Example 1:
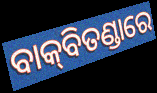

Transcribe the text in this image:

ବାକ୍‌ବିତଣ୍ଡାରେ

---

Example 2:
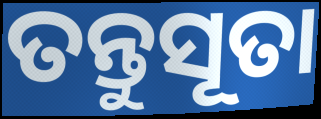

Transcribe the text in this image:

ତନ୍ତୁସୂତା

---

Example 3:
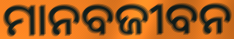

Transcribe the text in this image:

ମାନବଜୀବନ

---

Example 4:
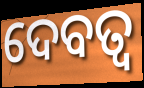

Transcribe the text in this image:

ଦେବତ୍ୱ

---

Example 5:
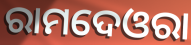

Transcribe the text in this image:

ରାମଦେଓରା